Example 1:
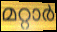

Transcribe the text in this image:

മറ്റാർ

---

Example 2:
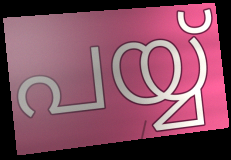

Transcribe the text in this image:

പയ്യ്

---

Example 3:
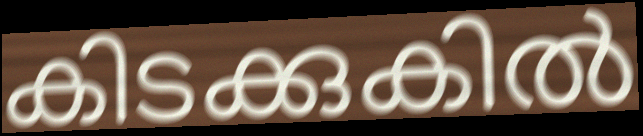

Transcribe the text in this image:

കിടക്കുകിൽ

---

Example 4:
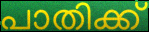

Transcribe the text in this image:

പാതിക്ക്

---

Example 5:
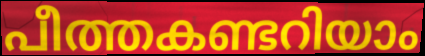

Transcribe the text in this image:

പീത്തകണ്ടറിയാം